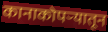
कानाकोपऱ्यातून